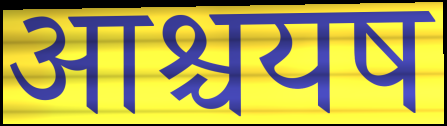
आश्चयष